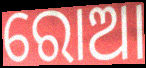
ରୋଆ